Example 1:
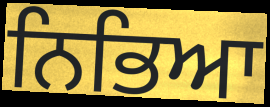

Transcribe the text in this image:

ਨਿਭਿਆ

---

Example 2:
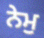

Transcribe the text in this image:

ਨੇਮੁ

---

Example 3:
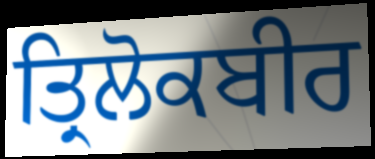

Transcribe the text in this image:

ਤ੍ਰਿਲੋਕਬੀਰ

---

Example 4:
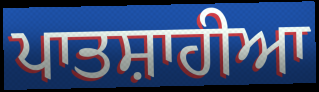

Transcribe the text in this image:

ਪਾਤਸ਼ਾਹੀਆ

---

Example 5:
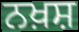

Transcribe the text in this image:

ਨਖ਼ਸ਼